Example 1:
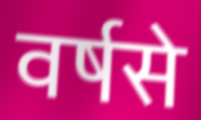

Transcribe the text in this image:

वर्षसे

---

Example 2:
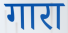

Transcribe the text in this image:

गारा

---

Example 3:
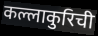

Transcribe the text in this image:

कल्लाकुरिची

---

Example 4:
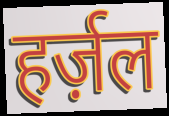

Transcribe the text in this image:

हर्ज़ल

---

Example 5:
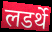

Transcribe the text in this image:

लडर्थे